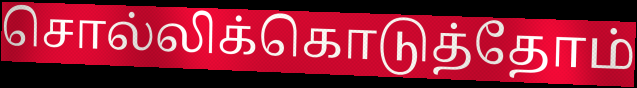
சொல்லிக்கொடுத்தோம்